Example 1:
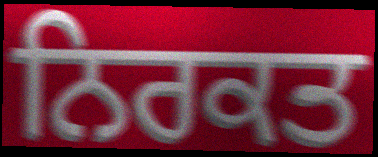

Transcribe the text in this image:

ਨਿਰਕਤ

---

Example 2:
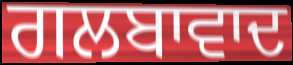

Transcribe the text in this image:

ਗਲਬਾਵਾਦ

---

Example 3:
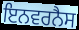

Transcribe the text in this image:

ਇਨਵਰਨੈਸ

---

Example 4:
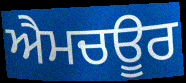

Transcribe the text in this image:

ਐਮਚਊਰ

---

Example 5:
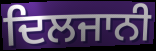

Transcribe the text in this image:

ਦਿਲਜਾਨੀ